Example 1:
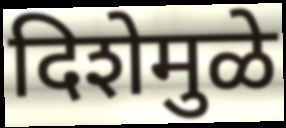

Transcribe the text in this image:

दिशेमुळे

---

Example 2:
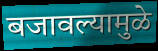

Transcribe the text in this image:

बजावल्यामुळे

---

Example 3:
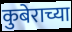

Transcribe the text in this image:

कुबेराच्या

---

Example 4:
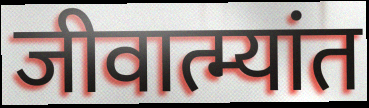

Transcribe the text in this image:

जीवात्म्यांत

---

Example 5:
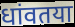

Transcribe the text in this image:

धांवतया